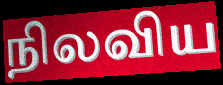
நிலவிய